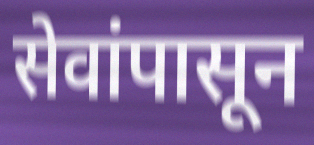
सेवांपासून